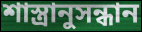
শাস্ত্রানুসন্ধান